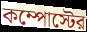
কম্পোস্টের